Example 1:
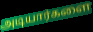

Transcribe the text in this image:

அடியார்களை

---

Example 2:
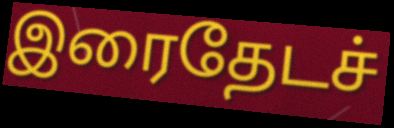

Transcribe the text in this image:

இரைதேடச்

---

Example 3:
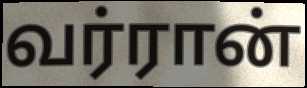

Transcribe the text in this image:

வர்ரான்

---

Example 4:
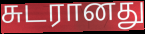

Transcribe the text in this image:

சுடரானது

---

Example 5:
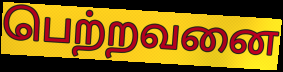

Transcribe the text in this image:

பெற்றவனை